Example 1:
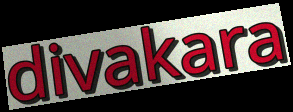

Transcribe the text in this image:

divakara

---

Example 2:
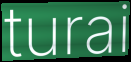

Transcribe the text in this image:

turai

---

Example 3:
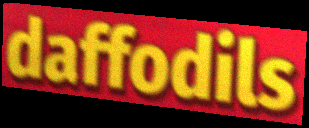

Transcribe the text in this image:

daffodils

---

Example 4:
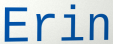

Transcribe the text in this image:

Erin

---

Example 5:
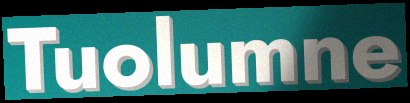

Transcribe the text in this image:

Tuolumne